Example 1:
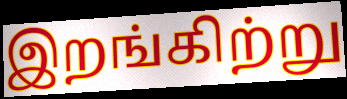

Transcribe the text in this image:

இறங்கிற்று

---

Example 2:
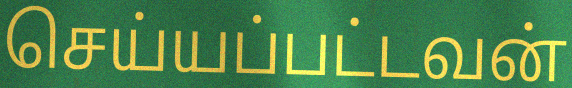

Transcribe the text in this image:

செய்யப்பட்டவன்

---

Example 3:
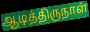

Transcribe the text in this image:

ஆடித்திருநாள்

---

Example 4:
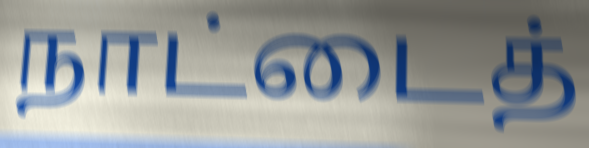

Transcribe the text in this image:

நாட்டைத்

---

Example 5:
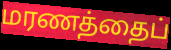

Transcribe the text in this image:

மரணத்தைப்